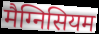
मैग्निसियम